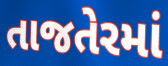
તાજતેરમાં